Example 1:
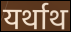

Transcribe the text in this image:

यर्थाथ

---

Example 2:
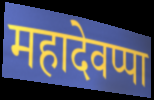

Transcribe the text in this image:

महादेवप्पा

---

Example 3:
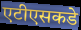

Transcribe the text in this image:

एटीएसकडे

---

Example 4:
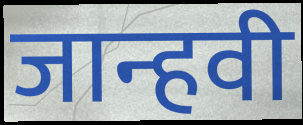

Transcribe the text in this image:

जान्हवी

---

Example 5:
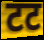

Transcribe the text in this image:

टट